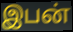
இபன்